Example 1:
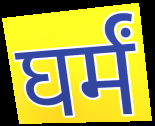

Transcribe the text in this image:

घर्मं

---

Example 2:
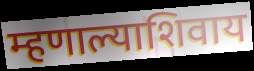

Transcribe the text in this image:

म्हणाल्याशिवाय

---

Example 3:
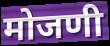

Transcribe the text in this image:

मोजणी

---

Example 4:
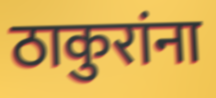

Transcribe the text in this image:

ठाकुरांना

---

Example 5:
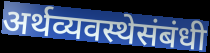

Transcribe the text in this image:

अर्थव्यवस्थेसंबंधी